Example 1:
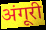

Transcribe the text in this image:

अंगूरी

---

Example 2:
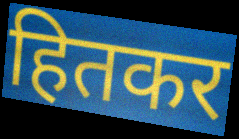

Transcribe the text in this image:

हितकर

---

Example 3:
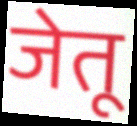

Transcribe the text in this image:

जेतू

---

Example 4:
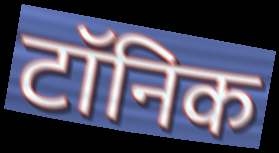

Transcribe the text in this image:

टॉनिक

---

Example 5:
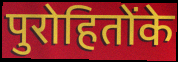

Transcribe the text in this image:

पुरोहितोंके